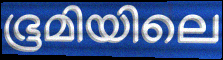
ഭൂമിയിലെ